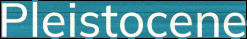
Pleistocene